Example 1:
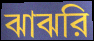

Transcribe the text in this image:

ঝাঝরি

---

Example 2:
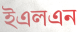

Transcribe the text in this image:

ইএলএন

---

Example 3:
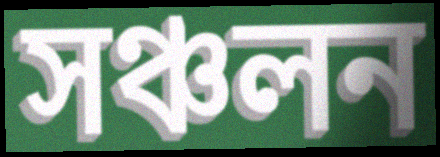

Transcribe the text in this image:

সঞ্চলন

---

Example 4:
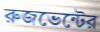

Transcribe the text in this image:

রুজভেন্টের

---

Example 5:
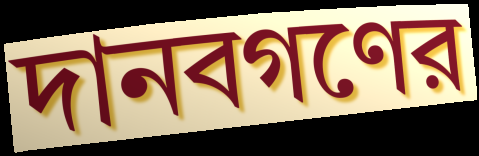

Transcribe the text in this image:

দানবগণের